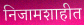
निजामशाहीत